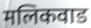
मलिकवाड